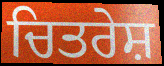
ਚਿਤਰੇਸ਼